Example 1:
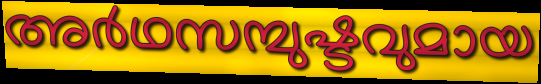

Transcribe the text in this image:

അർഥസമ്പുഷ്ടവുമായ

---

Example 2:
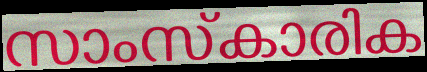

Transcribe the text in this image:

സാംസ്‌കാരിക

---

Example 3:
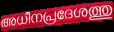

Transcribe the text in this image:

അധീനപ്രദേശത്തു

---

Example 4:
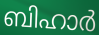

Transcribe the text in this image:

ബിഹാർ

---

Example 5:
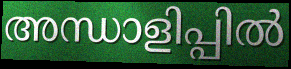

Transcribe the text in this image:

അന്ധാളിപ്പിൽ